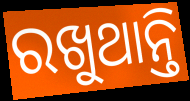
ରଖୁଥାନ୍ତି